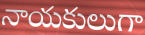
నాయకులుగా